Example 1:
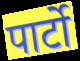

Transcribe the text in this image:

पार्टो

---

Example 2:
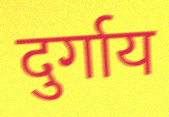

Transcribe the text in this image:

दुर्गाय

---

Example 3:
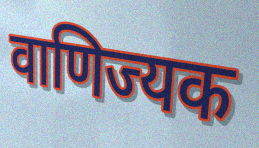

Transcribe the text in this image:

वाणिज्यक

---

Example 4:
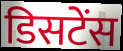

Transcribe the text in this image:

डिसटेंस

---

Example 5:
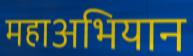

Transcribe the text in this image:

महाअभियान